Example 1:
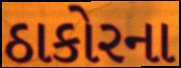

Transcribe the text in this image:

ઠાકોરના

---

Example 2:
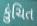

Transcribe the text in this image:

કુંચિત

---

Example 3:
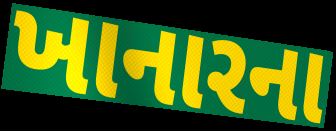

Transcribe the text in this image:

ખાનારના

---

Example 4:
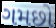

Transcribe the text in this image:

ગમછો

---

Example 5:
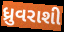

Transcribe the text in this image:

ધ્રુવરાશી